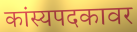
कांस्यपदकावर